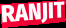
RANJIT